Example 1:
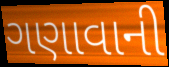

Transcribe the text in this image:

ગણાવાની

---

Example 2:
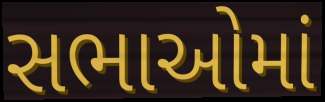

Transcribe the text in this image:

સભાઓમાં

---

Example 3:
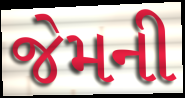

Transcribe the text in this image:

જેમની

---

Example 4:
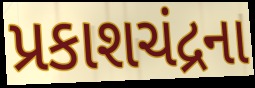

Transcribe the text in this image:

પ્રકાશચંદ્રના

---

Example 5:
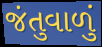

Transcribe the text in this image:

જંતુવાળું